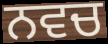
ਨਵਚ